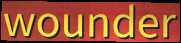
wounder